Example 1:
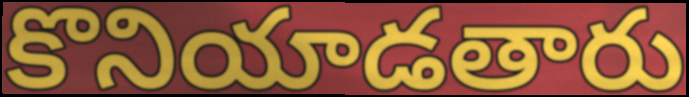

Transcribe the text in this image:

కొనియాడతారు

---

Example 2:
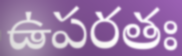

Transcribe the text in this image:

ఉపరతః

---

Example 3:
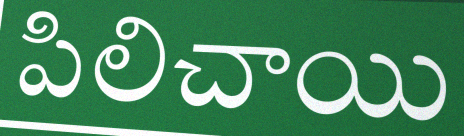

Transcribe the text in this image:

పిలిచాయి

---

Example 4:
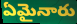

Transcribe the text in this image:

ఏమైనారు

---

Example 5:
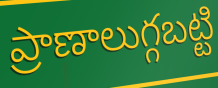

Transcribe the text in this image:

ప్రాణాలుగ్గబట్టి